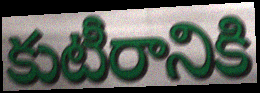
కుటీరానికి